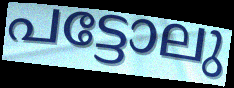
പട്ടോലു